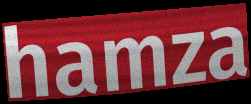
hamza